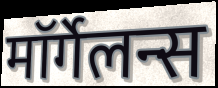
मॉर्गेलन्स